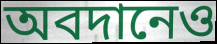
অবদানেও